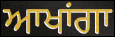
ਆਖਾਂਗਾ